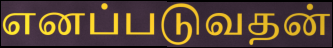
எனப்படுவதன்